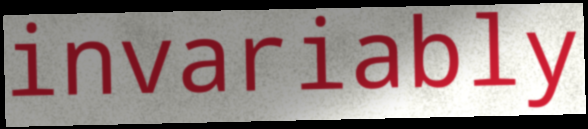
invariably